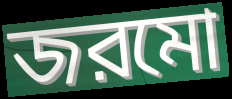
জরমো